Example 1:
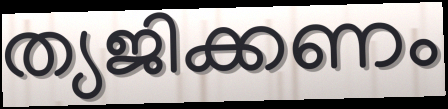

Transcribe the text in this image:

ത്യജിക്കണം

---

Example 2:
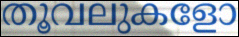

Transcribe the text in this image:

തൂവലുകളോ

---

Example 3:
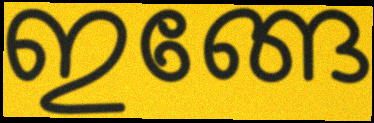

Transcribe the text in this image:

ഇങ്ങേ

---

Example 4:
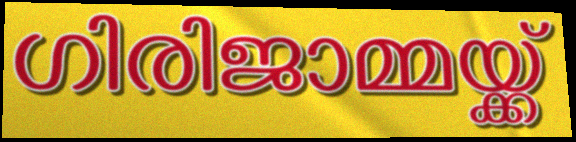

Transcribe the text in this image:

ഗിരിജാമ്മയ്ക്ക്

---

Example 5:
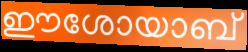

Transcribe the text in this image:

ഈശോയാബ്